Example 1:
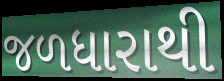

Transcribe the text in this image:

જળધારાથી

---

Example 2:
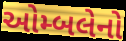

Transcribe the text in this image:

ઓમ્બલેનો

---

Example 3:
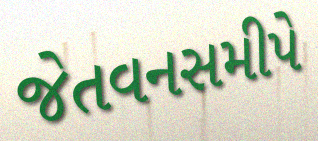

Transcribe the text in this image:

જેતવનસમીપે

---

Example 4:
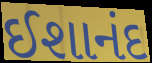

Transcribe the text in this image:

ઈશાનંદ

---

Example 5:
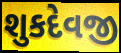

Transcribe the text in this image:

શુકદેવજી